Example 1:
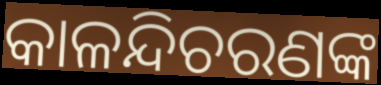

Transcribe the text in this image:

କାଳନ୍ଦିଚରଣଙ୍କ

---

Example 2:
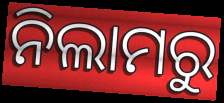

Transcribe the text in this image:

ନିଲାମରୁ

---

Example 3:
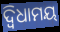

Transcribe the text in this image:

ଦ୍ୱିଧାମୟ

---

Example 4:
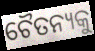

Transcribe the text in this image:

ଚୈତନ୍ୟକୁ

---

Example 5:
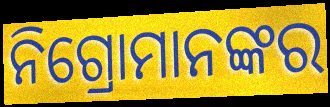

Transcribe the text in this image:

ନିଗ୍ରୋମାନଙ୍କର